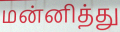
மன்னித்து